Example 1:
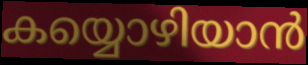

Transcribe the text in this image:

കയ്യൊഴിയാൻ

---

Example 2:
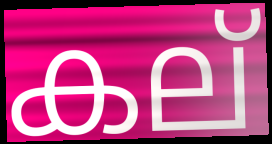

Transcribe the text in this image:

കല്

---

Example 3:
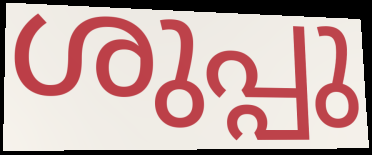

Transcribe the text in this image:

ശുപ്പു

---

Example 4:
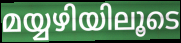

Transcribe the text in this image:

മയ്യഴിയിലൂടെ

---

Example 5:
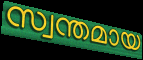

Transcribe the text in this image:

സ്വന്തമായ